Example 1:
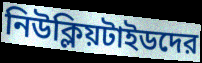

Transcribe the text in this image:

নিউক্লিয়টাইডদের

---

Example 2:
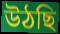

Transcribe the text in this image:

উঠছি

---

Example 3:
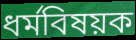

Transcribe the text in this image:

ধর্মবিষয়ক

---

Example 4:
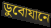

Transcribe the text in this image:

ডুবোযানে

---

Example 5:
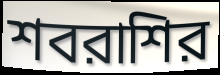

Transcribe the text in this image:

শবরাশির